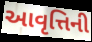
આવૃત્તિની